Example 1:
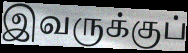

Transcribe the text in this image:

இவருக்குப்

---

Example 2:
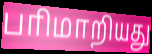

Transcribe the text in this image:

பரிமாறியது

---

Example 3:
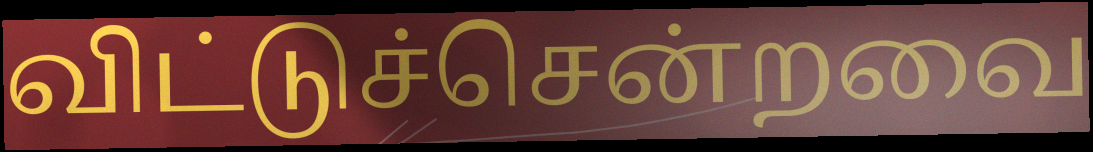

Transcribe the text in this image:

விட்டுச்சென்றவை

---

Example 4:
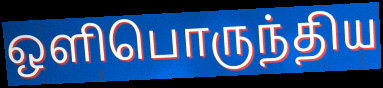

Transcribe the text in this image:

ஒளிபொருந்திய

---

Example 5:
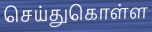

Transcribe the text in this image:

செய்துகொள்ள